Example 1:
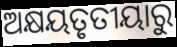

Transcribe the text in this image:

ଅକ୍ଷୟତୃତୀୟାରୁ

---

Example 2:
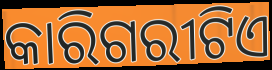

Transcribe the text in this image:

କାରିଗରୀଟିଏ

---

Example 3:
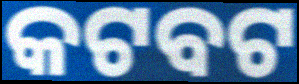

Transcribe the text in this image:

କଟବଟ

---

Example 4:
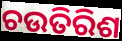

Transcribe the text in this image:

ଚଉତିରିଶ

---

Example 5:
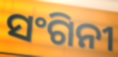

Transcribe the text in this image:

ସଂଗିନୀ